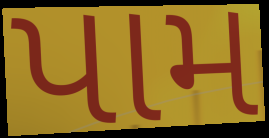
પામ